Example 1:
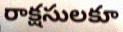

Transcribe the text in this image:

రాక్షసులకూ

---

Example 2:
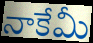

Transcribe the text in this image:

నాకేమీ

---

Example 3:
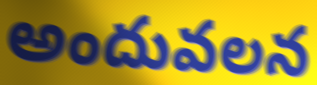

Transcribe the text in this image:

అందువలన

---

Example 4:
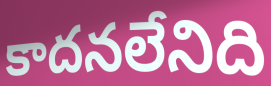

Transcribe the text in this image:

కాదనలేనిది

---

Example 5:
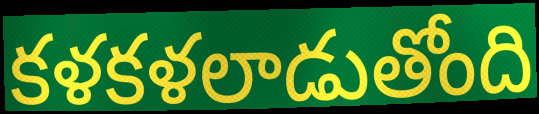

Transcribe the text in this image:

కళకళలాడుతోంది